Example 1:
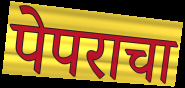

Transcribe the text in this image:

पेपराचा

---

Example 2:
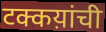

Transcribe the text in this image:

टक्कय़ांची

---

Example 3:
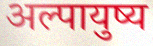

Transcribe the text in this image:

अल्पायुष्य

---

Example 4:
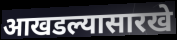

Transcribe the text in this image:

आखडल्यासारखे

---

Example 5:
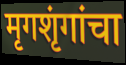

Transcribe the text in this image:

मृगशृंगांचा